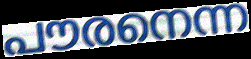
പൗരനെന്ന